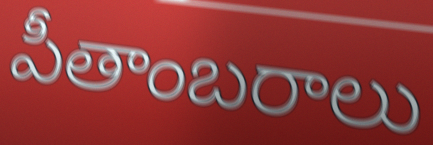
పీతాంబరాలు